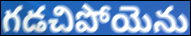
గడచిపోయెను